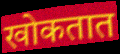
खोकतात